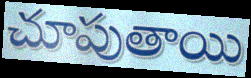
చూపుతాయి